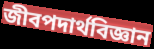
জীবপদার্থবিজ্ঞান